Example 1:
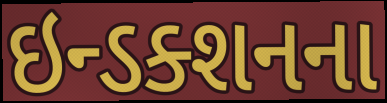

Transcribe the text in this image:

ઇન્ડક્શનના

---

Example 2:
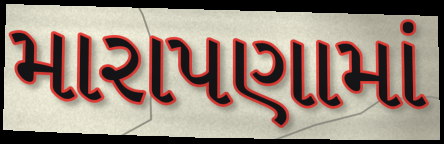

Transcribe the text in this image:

મારાપણામાં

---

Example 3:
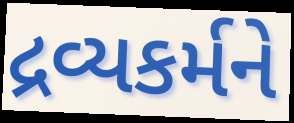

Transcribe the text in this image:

દ્રવ્યકર્મને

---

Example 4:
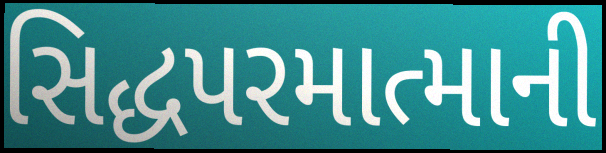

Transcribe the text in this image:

સિદ્ધપરમાત્માની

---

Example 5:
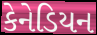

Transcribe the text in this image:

કેનેડિયન